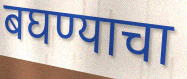
बघण्याचा